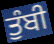
ਤੁੰਬੀ